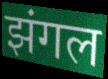
झंगल